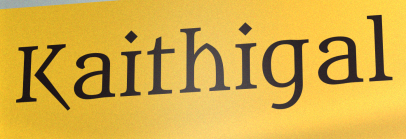
Kaithigal